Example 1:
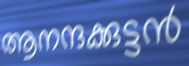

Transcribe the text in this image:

ആനന്ദക്കുട്ടൻ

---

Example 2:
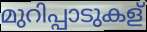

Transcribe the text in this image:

മുറിപ്പാടുകള്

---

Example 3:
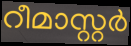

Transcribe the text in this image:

റീമാസ്റ്റർ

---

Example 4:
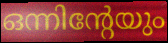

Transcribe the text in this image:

ഒന്നിന്റേയും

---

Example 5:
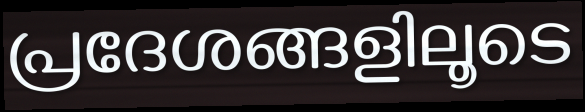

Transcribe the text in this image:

പ്രദേശങ്ങളിലൂടെ